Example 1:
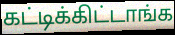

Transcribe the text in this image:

கட்டிக்கிட்டாங்க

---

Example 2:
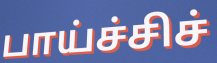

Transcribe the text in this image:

பாய்ச்சிச்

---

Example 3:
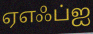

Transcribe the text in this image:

ஏஎஃப்ஐ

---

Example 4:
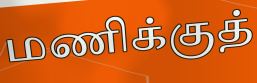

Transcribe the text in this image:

மணிக்குத்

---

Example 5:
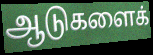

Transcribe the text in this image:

ஆடுகளைக்